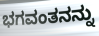
ಭಗವಂತನನ್ನು